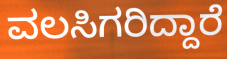
ವಲಸಿಗರಿದ್ದಾರೆ